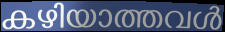
കഴിയാത്തവൾ